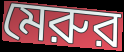
মেরুর